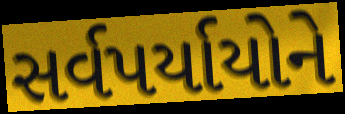
સર્વપર્યાયોને